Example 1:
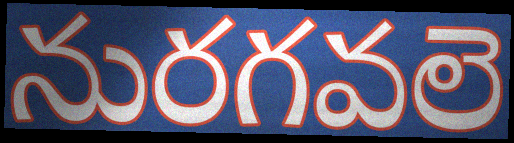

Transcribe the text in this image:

నురగవలె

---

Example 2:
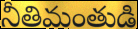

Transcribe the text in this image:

నీతిమంతుడి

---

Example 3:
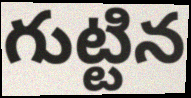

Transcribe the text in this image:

గుట్టిన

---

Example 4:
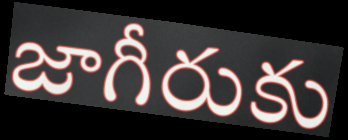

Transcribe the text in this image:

జాగీరుకు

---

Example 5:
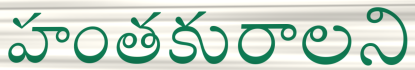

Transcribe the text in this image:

హంతకురాలని